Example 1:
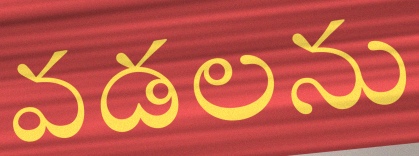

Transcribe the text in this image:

వడలను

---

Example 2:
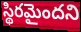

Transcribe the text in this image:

స్థిరమైందని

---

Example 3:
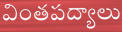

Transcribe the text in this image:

వింతపద్యాలు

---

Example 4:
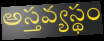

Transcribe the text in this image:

అస్తవ్యస్థం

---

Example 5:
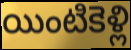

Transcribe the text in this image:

యింటికెళ్లి